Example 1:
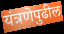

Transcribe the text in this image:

यंत्रणेपुढील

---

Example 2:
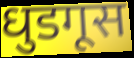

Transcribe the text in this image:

धुडगूस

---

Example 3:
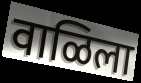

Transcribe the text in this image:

वाळिला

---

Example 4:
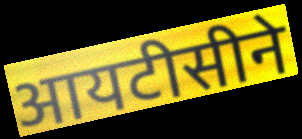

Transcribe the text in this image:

आयटीसीने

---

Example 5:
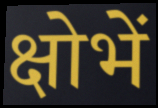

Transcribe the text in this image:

क्षोभें